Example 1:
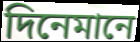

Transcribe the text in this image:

দিনেমানে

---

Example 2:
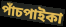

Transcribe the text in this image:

পাঁচপাইকা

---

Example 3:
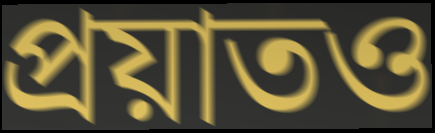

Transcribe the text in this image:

প্রয়াতও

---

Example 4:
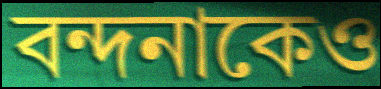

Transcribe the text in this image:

বন্দনাকেও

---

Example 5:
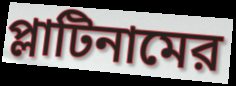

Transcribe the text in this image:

প্লাটিনামের